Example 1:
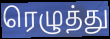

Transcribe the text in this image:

ரெழுத்து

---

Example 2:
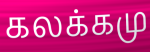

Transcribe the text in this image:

கலக்கமு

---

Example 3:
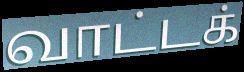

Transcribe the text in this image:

வாட்டக்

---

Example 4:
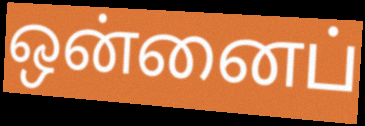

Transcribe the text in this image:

ஒன்னைப்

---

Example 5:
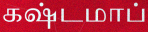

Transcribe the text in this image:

கஷ்டமாப்